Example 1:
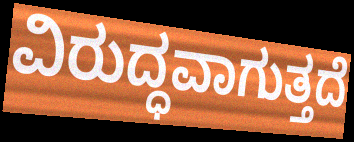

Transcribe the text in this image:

ವಿರುದ್ಧವಾಗುತ್ತದೆ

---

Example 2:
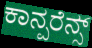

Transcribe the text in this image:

ಕಾನ್ಪರೆನ್ಸ್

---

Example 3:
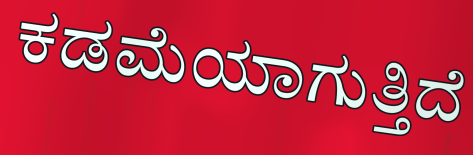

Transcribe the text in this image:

ಕಡಮೆಯಾಗುತ್ತಿದೆ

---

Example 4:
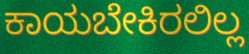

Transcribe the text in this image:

ಕಾಯಬೇಕಿರಲಿಲ್ಲ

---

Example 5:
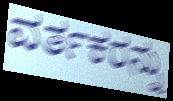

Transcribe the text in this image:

ವರ್ತಕರನ್ನು